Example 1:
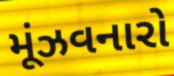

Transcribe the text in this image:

મૂંઝવનારો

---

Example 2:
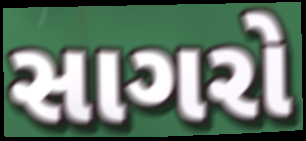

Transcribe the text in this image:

સાગરો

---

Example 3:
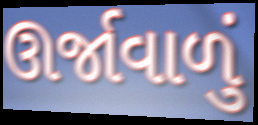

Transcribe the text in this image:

ઊર્જાવાળું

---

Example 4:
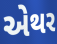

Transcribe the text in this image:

એથર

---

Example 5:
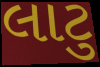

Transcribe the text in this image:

લાટુ